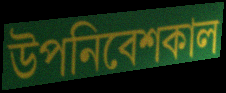
উপনিবেশকাল